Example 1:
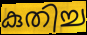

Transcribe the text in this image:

കുതിച്ച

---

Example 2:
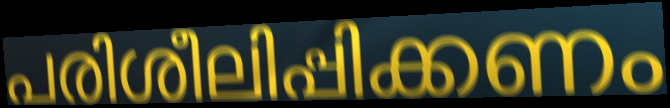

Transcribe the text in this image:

പരിശീലിപ്പിക്കണം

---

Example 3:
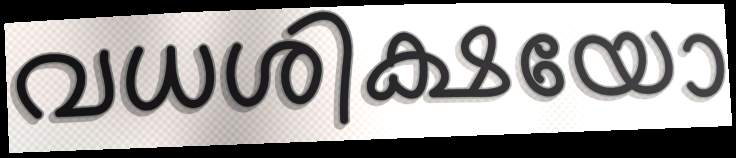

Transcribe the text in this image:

വധശിക്ഷയോ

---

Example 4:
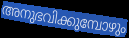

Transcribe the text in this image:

അനുഭവിക്കുമ്പോഴും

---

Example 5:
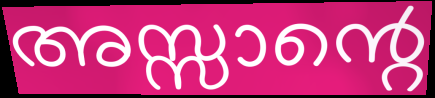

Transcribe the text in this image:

അസ്സാന്റെ